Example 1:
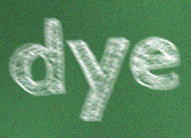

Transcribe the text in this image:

dye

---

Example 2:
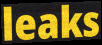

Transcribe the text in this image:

leaks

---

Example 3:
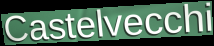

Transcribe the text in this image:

Castelvecchi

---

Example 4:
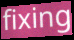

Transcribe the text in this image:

fixing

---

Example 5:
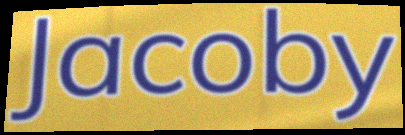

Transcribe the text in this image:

Jacoby